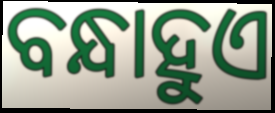
ବନ୍ଧାହୁଏ